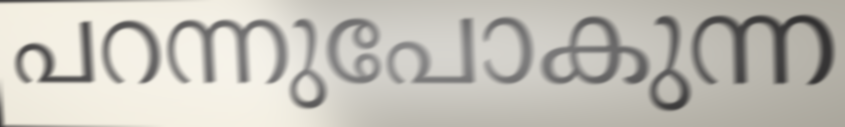
പറന്നുപോകുന്ന